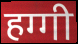
हग्गी